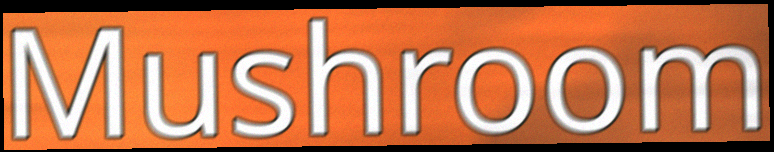
Mushroom